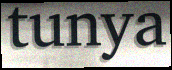
tunya